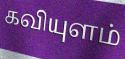
கவியுளம்